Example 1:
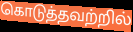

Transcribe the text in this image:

கொடுத்தவற்றில்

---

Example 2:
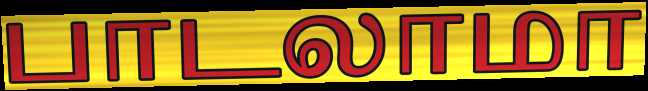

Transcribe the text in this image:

பாடலாமா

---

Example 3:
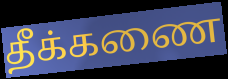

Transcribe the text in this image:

தீக்கணை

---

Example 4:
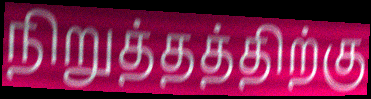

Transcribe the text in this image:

நிறுத்தத்திற்கு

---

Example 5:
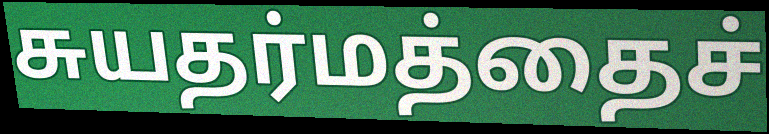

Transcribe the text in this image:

சுயதர்மத்தைச்